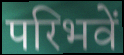
परिभवें